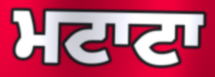
ਮਟਾਟਾ